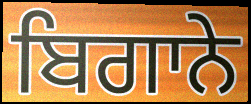
ਬਿਗਾਨੇ